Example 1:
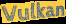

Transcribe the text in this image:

Vulkan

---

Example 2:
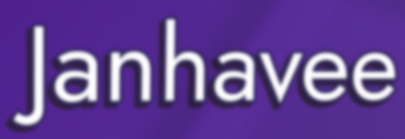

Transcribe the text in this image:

Janhavee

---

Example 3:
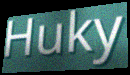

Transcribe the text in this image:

Huky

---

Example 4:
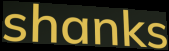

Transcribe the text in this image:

shanks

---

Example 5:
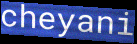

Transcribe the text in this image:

cheyani